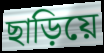
ছাড়িয়ে